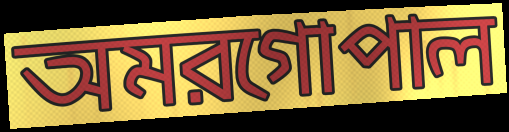
অমরগোপাল